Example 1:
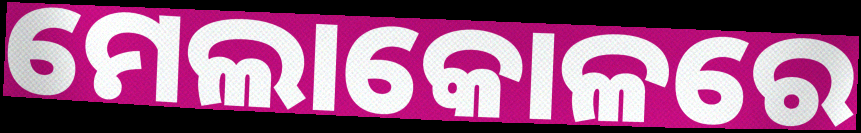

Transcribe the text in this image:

ମେଲାକୋଳରେ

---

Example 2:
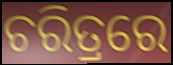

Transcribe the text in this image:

ଚରିତ୍ରରେ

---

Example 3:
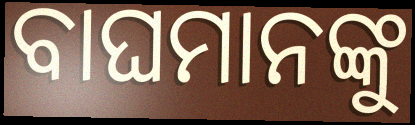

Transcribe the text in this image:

ବାଘମାନଙ୍କୁ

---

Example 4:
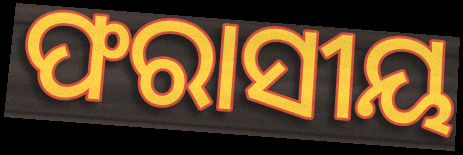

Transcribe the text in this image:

ଫରାସୀୟ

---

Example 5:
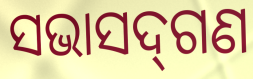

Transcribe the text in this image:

ସଭାସଦ୍‌ଗଣ